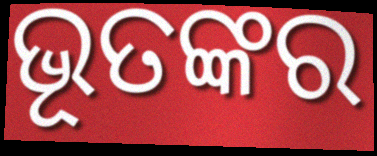
ଭୂତଙ୍କର